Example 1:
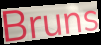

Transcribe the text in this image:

Bruns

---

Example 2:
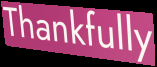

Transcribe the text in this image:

Thankfully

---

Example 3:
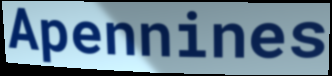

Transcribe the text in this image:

Apennines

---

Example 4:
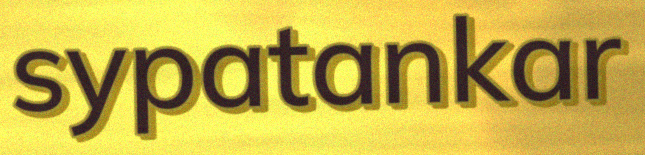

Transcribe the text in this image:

sypatankar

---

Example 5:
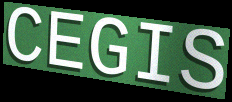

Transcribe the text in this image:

CEGIS